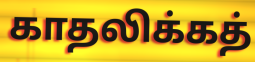
காதலிக்கத்